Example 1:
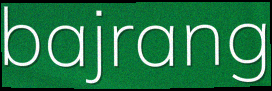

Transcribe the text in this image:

bajrang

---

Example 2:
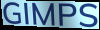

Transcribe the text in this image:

GIMPS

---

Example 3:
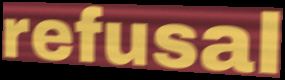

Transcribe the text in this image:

refusal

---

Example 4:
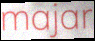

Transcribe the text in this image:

majar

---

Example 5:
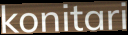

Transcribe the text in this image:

konitari